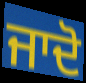
ਜਾਦੋ